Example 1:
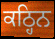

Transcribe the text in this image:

ਕਠ੍ਹਿਨ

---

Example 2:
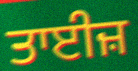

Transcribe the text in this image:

ਤਾਈਜ਼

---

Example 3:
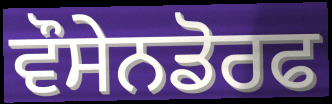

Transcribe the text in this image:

ਵੌਸੇਨਡੋਰਫ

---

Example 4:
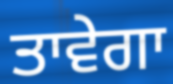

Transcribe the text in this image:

ਤਾਵੇਗਾ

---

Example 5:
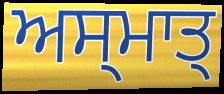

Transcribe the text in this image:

ਅਸ੍ਮਾਤ੍